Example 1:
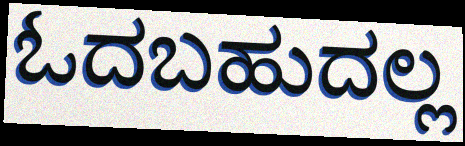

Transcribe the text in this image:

ಓದಬಹುದಲ್ಲ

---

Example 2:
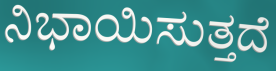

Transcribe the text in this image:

ನಿಭಾಯಿಸುತ್ತದೆ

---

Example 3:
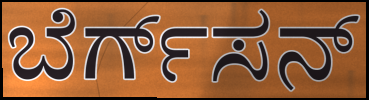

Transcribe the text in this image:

ಬೆರ್ಗ್‌ಸನ್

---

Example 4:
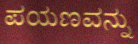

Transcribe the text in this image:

ಪಯಣವನ್ನು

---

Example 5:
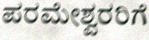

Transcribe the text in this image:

ಪರಮೇಶ್ವರರಿಗೆ